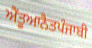
ਐਂਤੂਆਨੈਤਪੰਜਾਬੀ